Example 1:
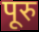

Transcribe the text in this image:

पूरु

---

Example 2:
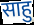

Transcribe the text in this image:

साहु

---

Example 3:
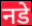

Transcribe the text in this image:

नडे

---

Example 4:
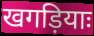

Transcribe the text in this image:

खगड़ियाः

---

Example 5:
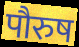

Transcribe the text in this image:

पौरुष